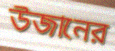
উজানের